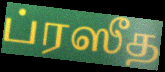
ப்ரஸீத